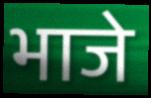
भाजे